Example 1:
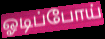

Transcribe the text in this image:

ஓடிப்போய்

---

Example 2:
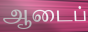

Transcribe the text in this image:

ஆடைப்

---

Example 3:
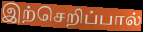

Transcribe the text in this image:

இற்செறிப்பால்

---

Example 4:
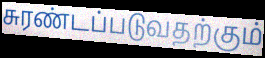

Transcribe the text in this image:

சுரண்டப்படுவதற்கும்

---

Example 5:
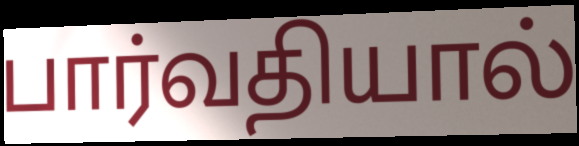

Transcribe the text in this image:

பார்வதியால்